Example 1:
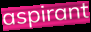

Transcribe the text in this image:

aspirant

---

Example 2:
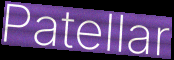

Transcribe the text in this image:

Patellar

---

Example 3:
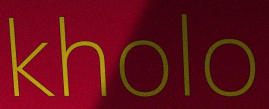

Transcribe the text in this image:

kholo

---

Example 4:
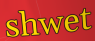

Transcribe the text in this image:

shwet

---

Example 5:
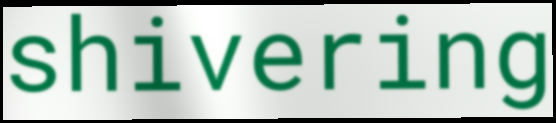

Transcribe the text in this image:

shivering